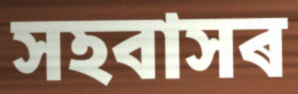
সহবাসৰ